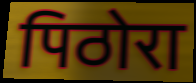
पिठोरा